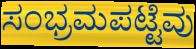
ಸಂಭ್ರಮಪಟ್ಟೆವು